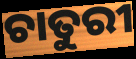
ଚାତୁରୀ